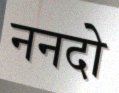
ननदो